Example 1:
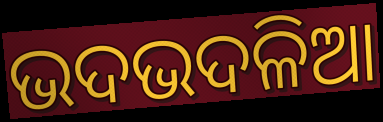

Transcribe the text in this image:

ଭଦଭଦଳିଆ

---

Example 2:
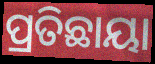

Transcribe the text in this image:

ପ୍ରତିଛାୟା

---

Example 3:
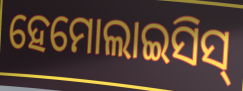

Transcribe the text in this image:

ହେମୋଲାଇସିସ୍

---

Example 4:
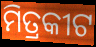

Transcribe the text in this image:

ମିତ୍ରକୀଟ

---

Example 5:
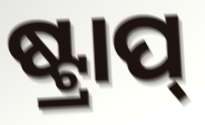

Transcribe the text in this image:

ଷ୍ଟ୍ରାପ୍